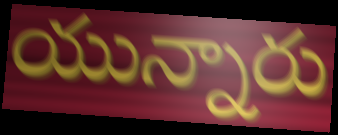
యున్నారు